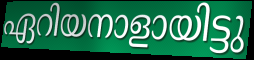
ഏറിയനാളായിട്ടു